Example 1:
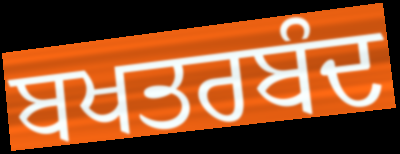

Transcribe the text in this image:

ਬਖਤਰਬੰਦ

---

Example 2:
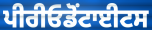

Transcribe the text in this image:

ਪੀਰੀਓਡੋਂਟਾਈਟਸ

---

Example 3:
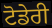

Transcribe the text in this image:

ਟੋਡੇਰੀ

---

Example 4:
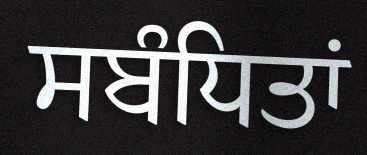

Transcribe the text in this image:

ਸਬੰਧਿਤਾਂ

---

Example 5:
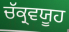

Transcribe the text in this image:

ਚੱਕ੍ਰਵਯੂਹ